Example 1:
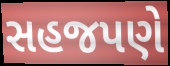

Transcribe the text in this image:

સહજપણે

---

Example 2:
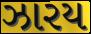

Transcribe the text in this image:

ઝારય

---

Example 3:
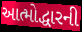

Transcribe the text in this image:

આત્મોદ્ધારની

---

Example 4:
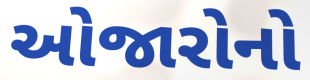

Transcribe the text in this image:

ઓજારોનો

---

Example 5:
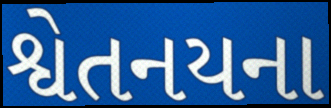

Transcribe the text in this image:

શ્વેતનયના